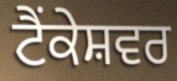
ਟੈਂਕੇਸ਼ਵਰ